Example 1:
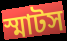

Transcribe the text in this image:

স্মাটস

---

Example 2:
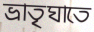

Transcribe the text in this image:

ভ্রাতৃঘাতে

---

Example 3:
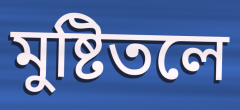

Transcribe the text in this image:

মুষ্টিতলে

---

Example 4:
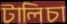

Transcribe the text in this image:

টালিচা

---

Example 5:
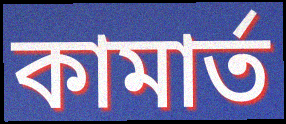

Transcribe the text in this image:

কামার্ত